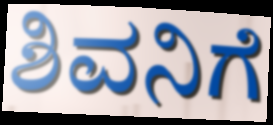
ಶಿವನಿಗೆ